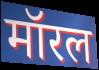
मॉरल